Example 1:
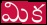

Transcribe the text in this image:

మిక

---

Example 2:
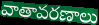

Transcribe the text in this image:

వాతావరణాలు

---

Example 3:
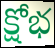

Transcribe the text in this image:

క్షోభ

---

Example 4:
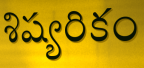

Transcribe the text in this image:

శిష్యరికం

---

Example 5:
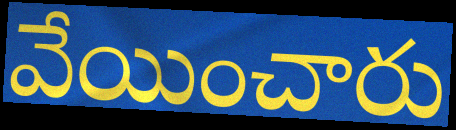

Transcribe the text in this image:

వేయించారు